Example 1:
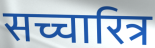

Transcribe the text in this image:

सच्चारित्र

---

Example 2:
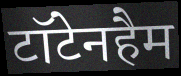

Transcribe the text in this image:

टॉटेनहैम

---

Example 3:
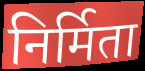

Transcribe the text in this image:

निर्मिता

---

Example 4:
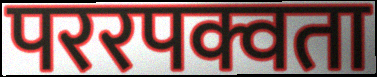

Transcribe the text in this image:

पररपक्वता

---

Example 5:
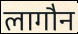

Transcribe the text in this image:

लागौन